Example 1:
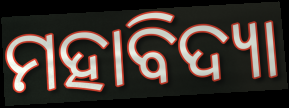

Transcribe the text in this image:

ମହାବିଦ୍ୟା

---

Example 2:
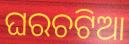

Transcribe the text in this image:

ଘରଚଟିଆ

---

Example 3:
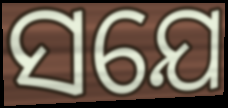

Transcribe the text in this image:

ସଯେ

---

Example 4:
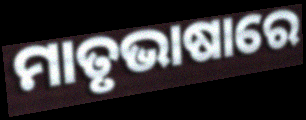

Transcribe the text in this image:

ମାତୃଭାଷାରେ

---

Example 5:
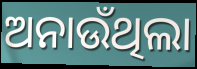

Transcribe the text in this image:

ଅନାଉଁଥିଲା